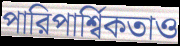
পারিপার্শ্বিকতাও